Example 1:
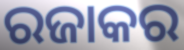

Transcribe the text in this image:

ରଜାକର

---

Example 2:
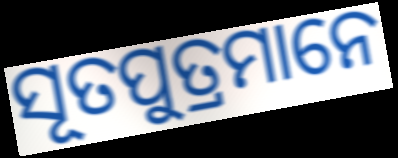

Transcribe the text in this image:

ସୂତପୁତ୍ରମାନେ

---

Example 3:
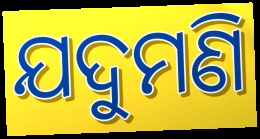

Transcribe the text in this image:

ଯଦୁମଣି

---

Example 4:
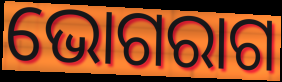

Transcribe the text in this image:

ଭୋଗରାଗ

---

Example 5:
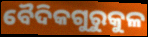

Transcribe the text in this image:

ବୈଦିକଗୁରୁକୁଳ